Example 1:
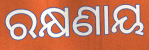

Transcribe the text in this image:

ରକ୍ଷଣାୟ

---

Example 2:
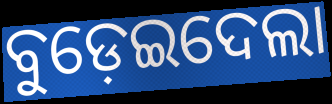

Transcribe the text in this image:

ବୁଡ଼େଇଦେଲା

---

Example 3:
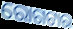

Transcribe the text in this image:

ରୋଗଟାର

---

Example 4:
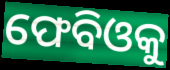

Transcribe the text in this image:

ଫେବିଓକୁ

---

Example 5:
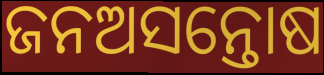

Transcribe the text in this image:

ଜନଅସନ୍ତୋଷ